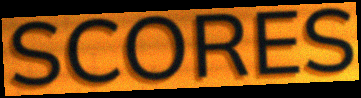
SCORES